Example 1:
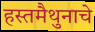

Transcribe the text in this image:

हस्तमैथुनाचे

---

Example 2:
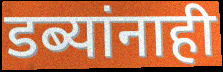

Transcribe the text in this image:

डब्यांनाही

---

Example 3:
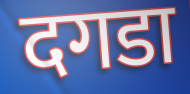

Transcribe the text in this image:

दगडा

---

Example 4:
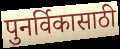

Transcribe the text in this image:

पुनर्विकासाठी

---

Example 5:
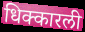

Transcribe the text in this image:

धिक्कारली